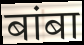
बांबा